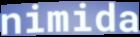
nimida